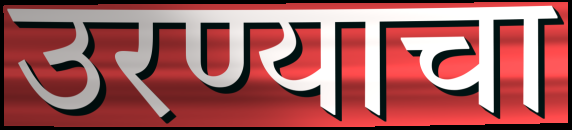
उरण्याचा